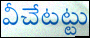
వీచేటట్టు